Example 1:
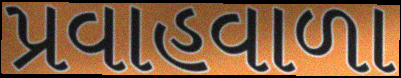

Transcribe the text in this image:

પ્રવાહવાળા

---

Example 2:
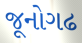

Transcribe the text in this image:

જૂનોગઢ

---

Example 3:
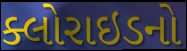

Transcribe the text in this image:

ક્લોરાઇડનો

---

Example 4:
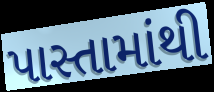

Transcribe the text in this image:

પાસ્તામાંથી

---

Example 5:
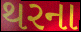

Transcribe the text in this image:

થરના